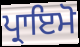
ਪ੍ਰਾਇਮੋ